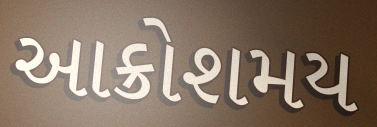
આક્રોશમય